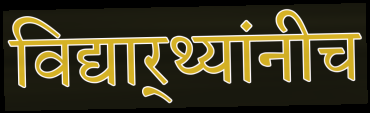
विद्यार्थ्यांनीच